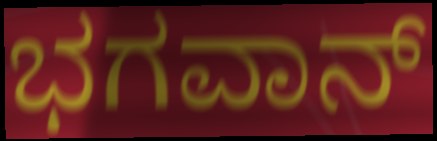
ಭಗವಾನ್